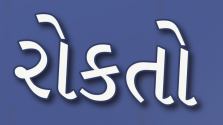
રોકતો